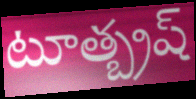
టూత్బ్రష్